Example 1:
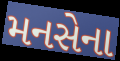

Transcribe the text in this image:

મનસેના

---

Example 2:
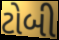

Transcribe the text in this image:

ટોબી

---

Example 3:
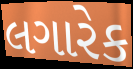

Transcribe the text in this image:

લગારેક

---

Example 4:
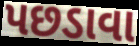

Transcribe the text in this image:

પછડાવા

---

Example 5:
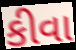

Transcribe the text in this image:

કીવા